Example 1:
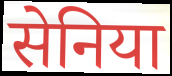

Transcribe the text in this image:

सेनिया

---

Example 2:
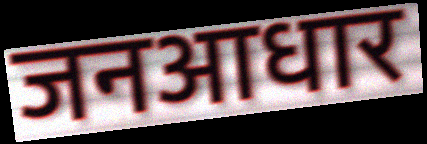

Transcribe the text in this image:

जनआधार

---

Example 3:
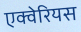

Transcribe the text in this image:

एक्वेरियस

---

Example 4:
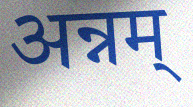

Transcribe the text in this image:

अन्नम्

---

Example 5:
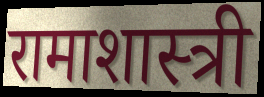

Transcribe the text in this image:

रामाशास्त्री